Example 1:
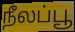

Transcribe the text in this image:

நீலப்பூ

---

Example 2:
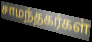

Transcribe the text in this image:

சாமந்தகர்கள்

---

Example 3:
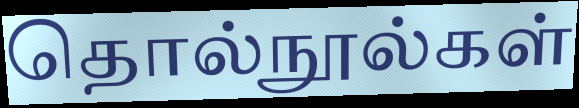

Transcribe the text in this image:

தொல்நூல்கள்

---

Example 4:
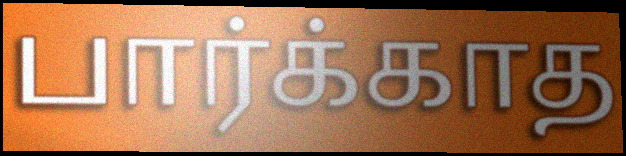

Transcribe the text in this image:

பார்க்காத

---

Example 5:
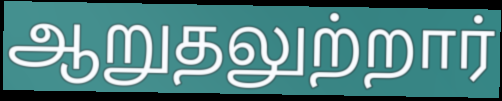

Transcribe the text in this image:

ஆறுதலுற்றார்